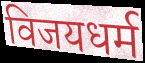
विजयधर्म